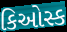
કિઓસ્ક